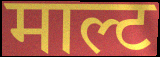
माल्ट